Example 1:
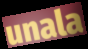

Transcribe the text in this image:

unala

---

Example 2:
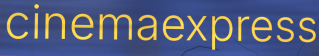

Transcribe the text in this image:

cinemaexpress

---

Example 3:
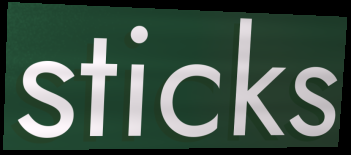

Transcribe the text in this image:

sticks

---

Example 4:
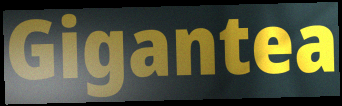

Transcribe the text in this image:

Gigantea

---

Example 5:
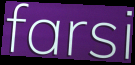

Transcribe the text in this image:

farsi